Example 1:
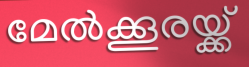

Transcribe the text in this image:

മേൽക്കൂരയ്ക്ക്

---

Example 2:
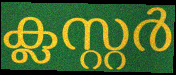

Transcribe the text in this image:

ക്ലസ്റ്റർ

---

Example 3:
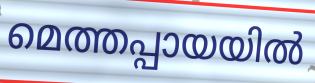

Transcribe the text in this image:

മെത്തപ്പായയിൽ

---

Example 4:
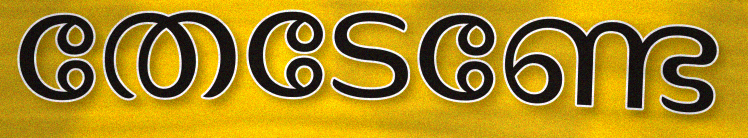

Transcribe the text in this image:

തേടേണ്ടേ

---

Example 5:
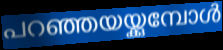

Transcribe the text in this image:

പറഞ്ഞയയ്ക്കുമ്പോൾ